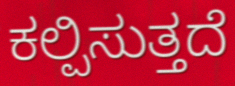
ಕಲ್ಪಿಸುತ್ತದೆ